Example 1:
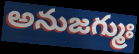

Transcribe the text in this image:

అనుజగ్ముః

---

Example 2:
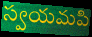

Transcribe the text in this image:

స్వయమపి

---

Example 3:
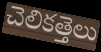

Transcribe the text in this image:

చెలికత్తెలు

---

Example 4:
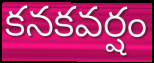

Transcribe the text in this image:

కనకవర్షం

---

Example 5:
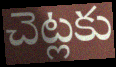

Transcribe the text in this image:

చెట్లకు